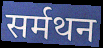
सर्मथन